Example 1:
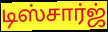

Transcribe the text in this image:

டிஸ்சார்ஜ்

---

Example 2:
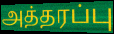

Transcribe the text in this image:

அத்தரப்பு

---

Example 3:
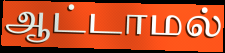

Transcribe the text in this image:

ஆட்டாமல்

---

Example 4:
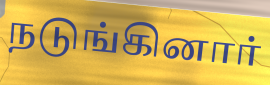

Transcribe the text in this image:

நடுங்கினார்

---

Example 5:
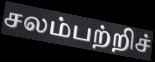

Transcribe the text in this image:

சலம்பற்றிச்